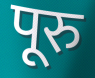
पूरु